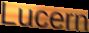
Lucern